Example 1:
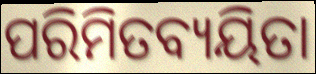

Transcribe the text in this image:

ପରିମିତବ୍ୟୟିତା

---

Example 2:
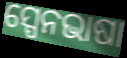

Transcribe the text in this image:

ସ୍ପେନଭାଷା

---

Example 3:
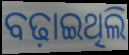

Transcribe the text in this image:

ବଢ଼ାଇଥିଲି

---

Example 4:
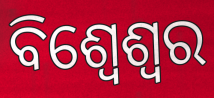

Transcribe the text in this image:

ବିଶ୍ୱେଶ୍ୱର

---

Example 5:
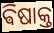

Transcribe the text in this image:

ଵିଷାକ୍ତ